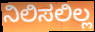
ನಿಲಿಸಲಿಲ್ಲ